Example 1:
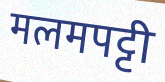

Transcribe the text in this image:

मलमपट्टी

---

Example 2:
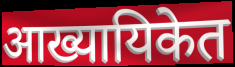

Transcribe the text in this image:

आख्यायिकेत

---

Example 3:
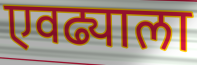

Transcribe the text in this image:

एवढ्याला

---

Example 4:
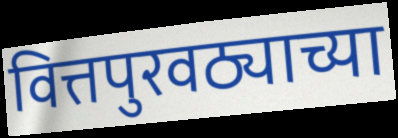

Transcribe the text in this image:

वित्तपुरवठ्याच्या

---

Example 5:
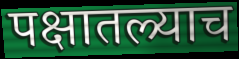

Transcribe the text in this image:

पक्षातल्याच